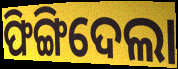
ଫିଙ୍ଗିଦେଲା